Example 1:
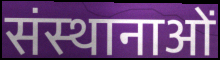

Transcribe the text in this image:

संस्थानाओं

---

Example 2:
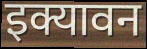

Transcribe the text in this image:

इक्यावन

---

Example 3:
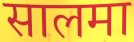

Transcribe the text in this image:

सालमा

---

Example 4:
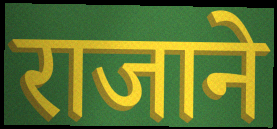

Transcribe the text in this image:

राजाने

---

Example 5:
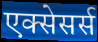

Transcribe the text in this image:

एक्सेसर्स